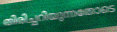
തിരിച്ചറിയുന്നതോടെ